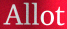
Allot